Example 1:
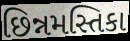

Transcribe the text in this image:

છિન્નમસ્તિકા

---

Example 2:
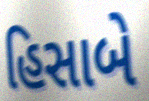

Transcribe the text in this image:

હિસાબે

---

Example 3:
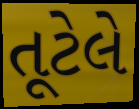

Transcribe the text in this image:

તૂટેલે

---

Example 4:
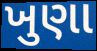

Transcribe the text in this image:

ખુણા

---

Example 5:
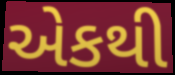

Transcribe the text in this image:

એકથી